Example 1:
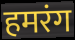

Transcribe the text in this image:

हमरंग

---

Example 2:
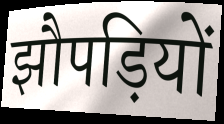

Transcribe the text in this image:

झौपड़ियों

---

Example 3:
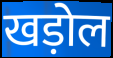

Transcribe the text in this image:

खड़ोल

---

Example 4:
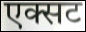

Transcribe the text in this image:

एक्सट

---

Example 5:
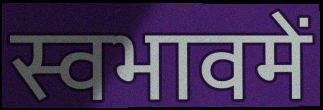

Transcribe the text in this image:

स्वभावमें